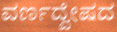
ವರ್ಣದ್ವೇಷದ